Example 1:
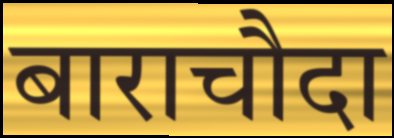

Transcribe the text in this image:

बाराचौदा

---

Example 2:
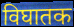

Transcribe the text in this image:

विघातक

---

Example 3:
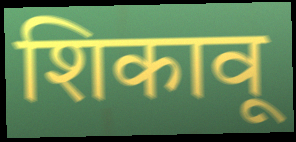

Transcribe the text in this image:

शिकावू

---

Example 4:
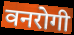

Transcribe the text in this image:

वनरोगी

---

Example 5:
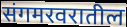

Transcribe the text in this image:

संगमरवरातील